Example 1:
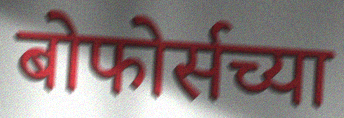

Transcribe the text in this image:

बोफोर्सच्या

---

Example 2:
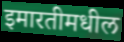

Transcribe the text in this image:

इमारतीमधील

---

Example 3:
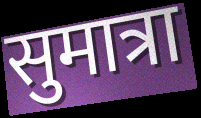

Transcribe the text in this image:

सुमात्रा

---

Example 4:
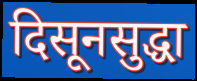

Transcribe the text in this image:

दिसूनसुद्धा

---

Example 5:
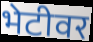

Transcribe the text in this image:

भेटीवर